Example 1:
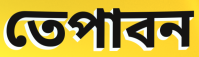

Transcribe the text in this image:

তেপাবন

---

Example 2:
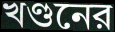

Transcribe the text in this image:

খণ্ডনের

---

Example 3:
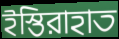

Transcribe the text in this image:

ইস্তিরাহাত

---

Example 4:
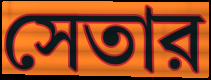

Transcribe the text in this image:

সেতার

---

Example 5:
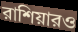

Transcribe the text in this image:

রাশিয়ারও